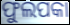
ଫୁଲପକା